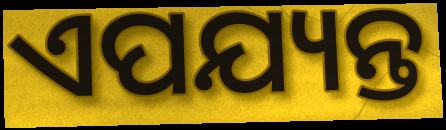
ଏପଯ୍ୟନ୍ତ